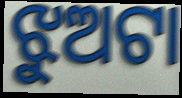
ଝୁଅଟା